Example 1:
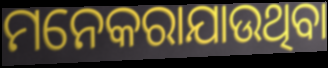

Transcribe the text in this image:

ମନେକରାଯାଉଥିବା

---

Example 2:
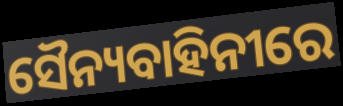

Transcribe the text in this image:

ସୈନ୍ୟବାହିନୀରେ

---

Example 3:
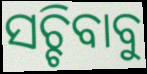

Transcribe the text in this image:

ସଚ୍ଚିବାବୁ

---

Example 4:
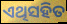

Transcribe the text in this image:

ଏଥିସହିତ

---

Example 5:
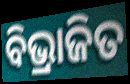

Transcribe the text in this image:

ବିଭ୍ରାଜିତ